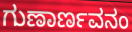
ಗುಣಾರ್ಣವನಂ